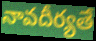
నావదీర్యతే